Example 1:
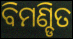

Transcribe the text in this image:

ବିମଣ୍ଡିତ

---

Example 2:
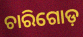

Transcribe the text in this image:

ଚାରିଗୋଡ଼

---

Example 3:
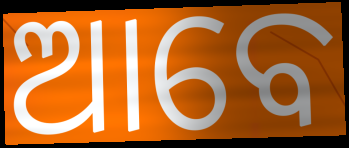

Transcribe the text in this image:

ଆବେ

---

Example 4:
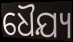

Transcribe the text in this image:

ଧୈଯ୍ୟ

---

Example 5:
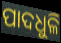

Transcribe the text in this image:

ପାଦଧୁଳି